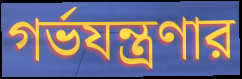
গর্ভযন্ত্রণার